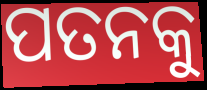
ପତନକୁ